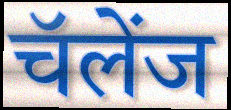
चॅलेंज